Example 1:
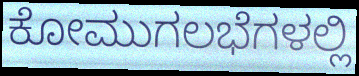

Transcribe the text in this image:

ಕೋಮುಗಲಭೆಗಳಲ್ಲಿ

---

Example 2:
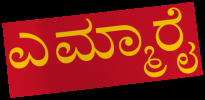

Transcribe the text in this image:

ಎಮ್ಮಾರೈ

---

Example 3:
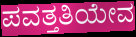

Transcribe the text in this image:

ಪವತ್ತತಿಯೇವ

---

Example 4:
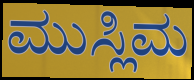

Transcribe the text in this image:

ಮುಸ್ಲಿಮ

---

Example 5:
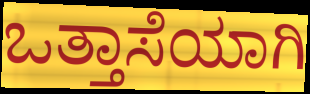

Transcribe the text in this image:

ಒತ್ತಾಸೆಯಾಗಿ